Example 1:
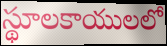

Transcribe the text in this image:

స్థూలకాయులలో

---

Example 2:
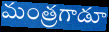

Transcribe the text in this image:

మంత్రగాడూ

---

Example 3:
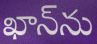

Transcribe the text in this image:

ఖాన్‌ను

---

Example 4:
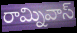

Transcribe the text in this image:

రామ్నివాస్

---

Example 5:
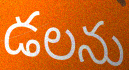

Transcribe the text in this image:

డలను